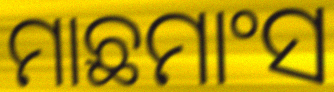
ମାଛମାଂସ